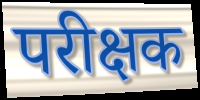
परीक्षक